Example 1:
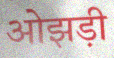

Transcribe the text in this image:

ओझड़ी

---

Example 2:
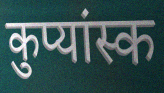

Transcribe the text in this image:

कुप्यांस्क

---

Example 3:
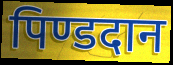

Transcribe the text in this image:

पिण्डदान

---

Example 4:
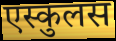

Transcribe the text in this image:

एस्कुलस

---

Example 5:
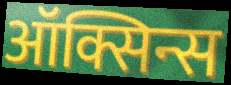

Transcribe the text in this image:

ऑक्सिन्स